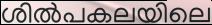
ശിൽപകലയിലെ